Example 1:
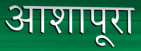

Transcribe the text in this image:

आशापूरा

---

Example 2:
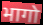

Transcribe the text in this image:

भागो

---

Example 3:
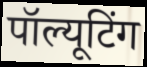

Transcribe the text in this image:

पॉल्यूटिंग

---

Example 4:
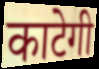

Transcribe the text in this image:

काटेगी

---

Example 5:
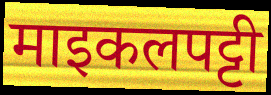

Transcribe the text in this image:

माइकलपट्टी